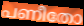
പണീതോ